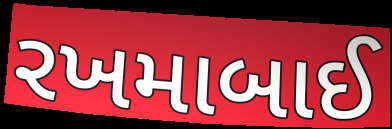
રખમાબાઈ